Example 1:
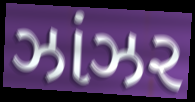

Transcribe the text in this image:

ઝાંઝર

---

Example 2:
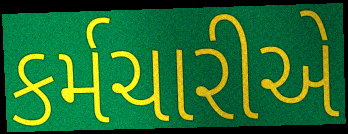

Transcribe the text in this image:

કર્મચારીએ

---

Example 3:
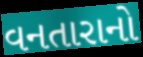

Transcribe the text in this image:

વનતારાનો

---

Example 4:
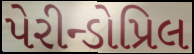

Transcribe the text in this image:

પેરીન્ડોપ્રિલ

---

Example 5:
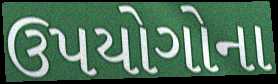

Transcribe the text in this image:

ઉપયોગોના